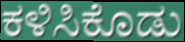
ಕಳಿಸಿಕೊಡು